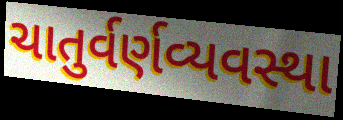
ચાતુર્વર્ણવ્યવસ્થા